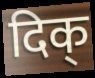
दिक्